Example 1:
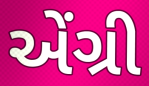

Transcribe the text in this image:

એંગ્રી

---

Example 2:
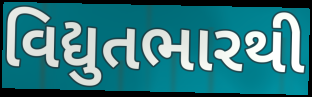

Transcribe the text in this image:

વિદ્યુતભારથી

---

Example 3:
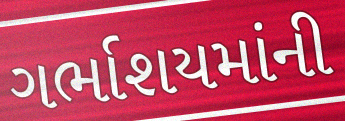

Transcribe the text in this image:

ગર્ભાશયમાંની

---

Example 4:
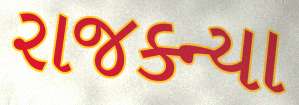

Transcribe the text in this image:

રાજક્ન્યા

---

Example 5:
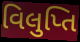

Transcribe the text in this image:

વિલુપ્તિ